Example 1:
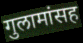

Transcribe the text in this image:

गुलामांसह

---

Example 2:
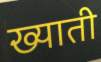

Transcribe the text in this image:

ख्याती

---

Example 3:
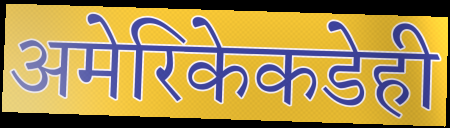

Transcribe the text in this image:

अमेरिकेकडेही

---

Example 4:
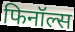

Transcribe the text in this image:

फिनॉल्स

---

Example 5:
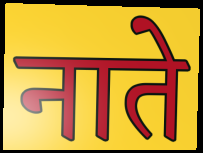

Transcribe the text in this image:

नाते